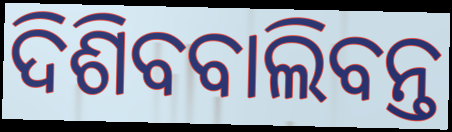
ଦିଶିବବାଲିବନ୍ତ